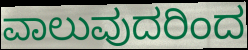
ವಾಲುವುದರಿಂದ